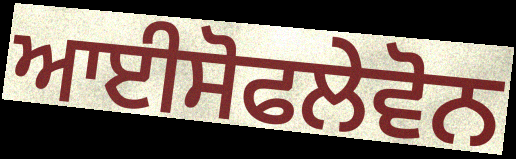
ਆਈਸੋਫਲੇਵੋਨ